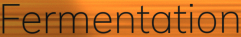
Fermentation